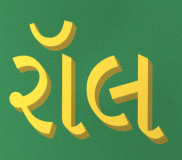
રૉલ